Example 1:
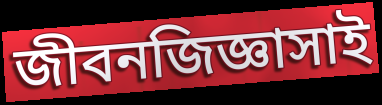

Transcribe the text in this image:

জীবনজিজ্ঞাসাই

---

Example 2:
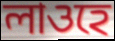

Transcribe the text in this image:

লাওহে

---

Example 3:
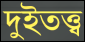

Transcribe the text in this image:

দুইতত্ত্ব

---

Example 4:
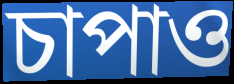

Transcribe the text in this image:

চাপাও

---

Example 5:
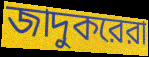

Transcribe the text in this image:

জাদুকরেরা